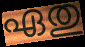
ഏതു